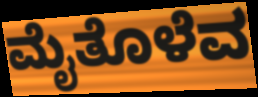
ಮೈತೊಳೆವ